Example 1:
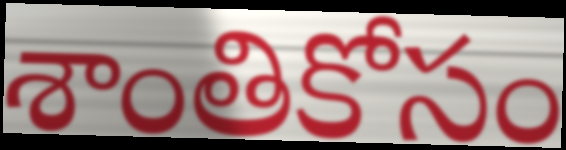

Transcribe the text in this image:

శాంతికోసం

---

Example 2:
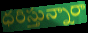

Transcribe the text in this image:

ధరిస్తున్నారా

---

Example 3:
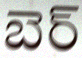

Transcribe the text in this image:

బెర్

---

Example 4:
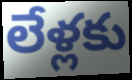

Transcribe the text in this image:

లేళ్లకు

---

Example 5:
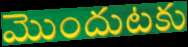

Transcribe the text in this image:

మొందుటకు